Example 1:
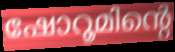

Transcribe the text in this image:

ഷോറൂമിന്റെ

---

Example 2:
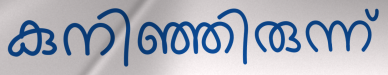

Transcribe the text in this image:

കുനിഞ്ഞിരുന്ന്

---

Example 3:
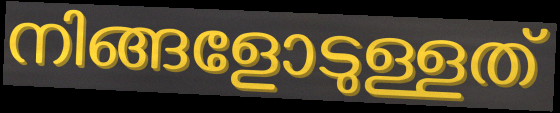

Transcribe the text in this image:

നിങ്ങളോടുള്ളത്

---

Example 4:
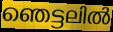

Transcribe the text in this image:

ഞെട്ടലിൽ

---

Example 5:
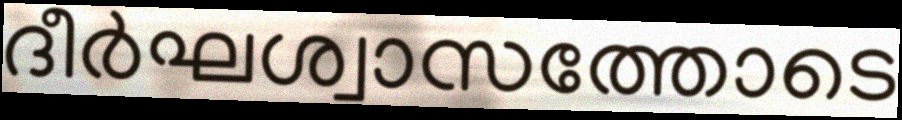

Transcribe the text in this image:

ദീർഘശ്വാസത്തോടെ